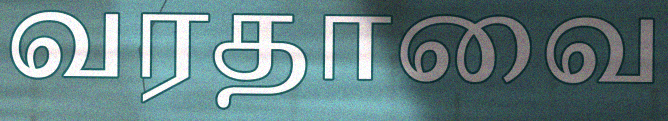
வரதாவை